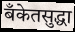
बँकेतसुद्धा